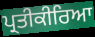
ਪ੍ਰਤੀਕੀਰਿਆ